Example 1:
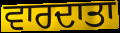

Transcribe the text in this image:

ਵਾਰਦਾਤਾ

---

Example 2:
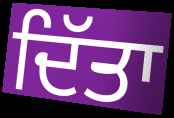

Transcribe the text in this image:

ਦਿੱਤਾ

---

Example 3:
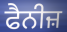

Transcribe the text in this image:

ਫੈਨੀਜ਼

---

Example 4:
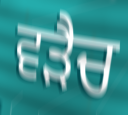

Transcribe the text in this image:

ਵੜੈਚ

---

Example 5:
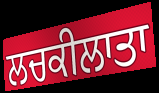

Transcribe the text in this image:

ਲਚਕੀਲਾਤਾ